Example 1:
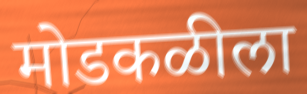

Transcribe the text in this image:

मोडकळीला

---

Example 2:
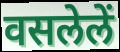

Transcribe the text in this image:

वसलेलें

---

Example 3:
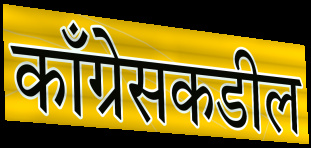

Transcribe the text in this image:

काँग्रेसकडील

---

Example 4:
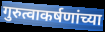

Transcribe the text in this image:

गुरुत्वाकर्षणांच्या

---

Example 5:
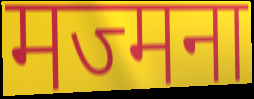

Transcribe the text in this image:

मज्मना